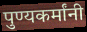
पुण्यकर्मांनी